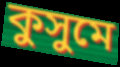
কুসুমে